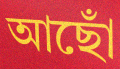
আছোঁ